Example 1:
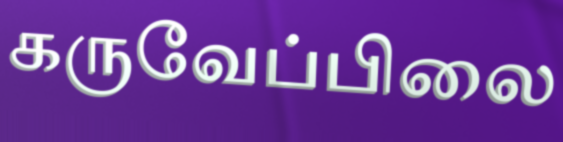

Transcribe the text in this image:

கருவேப்பிலை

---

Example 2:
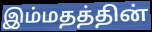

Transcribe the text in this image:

இம்மதத்தின்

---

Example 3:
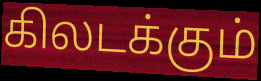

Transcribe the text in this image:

கிலடக்கும்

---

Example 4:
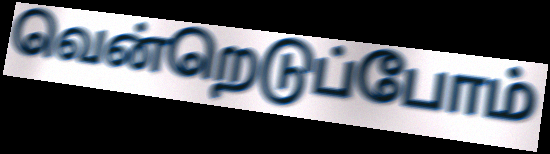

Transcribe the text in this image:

வென்றெடுப்போம்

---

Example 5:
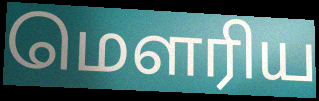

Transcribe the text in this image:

மெளரிய